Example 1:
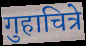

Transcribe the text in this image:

गुहाचित्रे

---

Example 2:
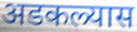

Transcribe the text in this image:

अडकल्यास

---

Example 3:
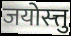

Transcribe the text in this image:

जयोस्त्तु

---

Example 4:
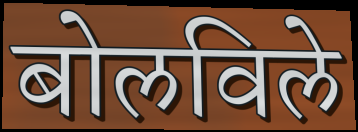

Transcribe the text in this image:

बोलविले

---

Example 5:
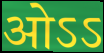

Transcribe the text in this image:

ओऽऽ